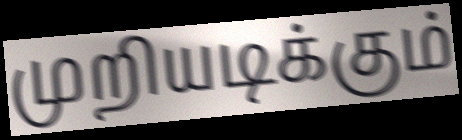
முறியடிக்கும்